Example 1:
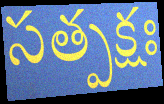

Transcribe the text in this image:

సత్పక్షః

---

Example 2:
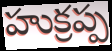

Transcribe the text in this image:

హుక్రప్ప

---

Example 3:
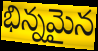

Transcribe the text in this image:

భిన్నమైన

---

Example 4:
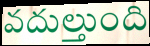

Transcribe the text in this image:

వదుల్తుంది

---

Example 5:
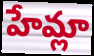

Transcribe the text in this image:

హేమ్లా